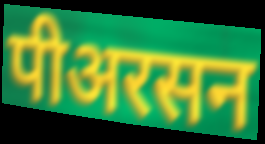
पीअरसन